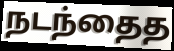
நடந்தைத